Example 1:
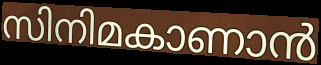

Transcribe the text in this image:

സിനിമകാണാൻ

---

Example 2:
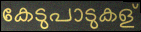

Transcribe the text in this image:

കേടുപാടുകള്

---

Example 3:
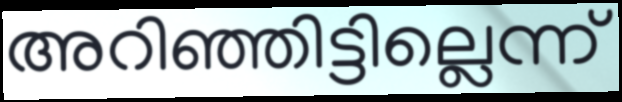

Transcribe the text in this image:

അറിഞ്ഞിട്ടില്ലെന്ന്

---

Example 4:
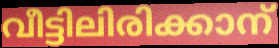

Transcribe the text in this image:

വീട്ടിലിരിക്കാന്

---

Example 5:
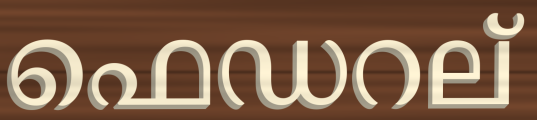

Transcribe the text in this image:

ഫെഡറല്